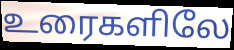
உரைகளிலே